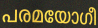
പരമയോഗീ